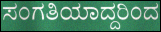
ಸಂಗತಿಯಾದ್ದರಿಂದ